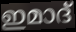
ഇമാദ്